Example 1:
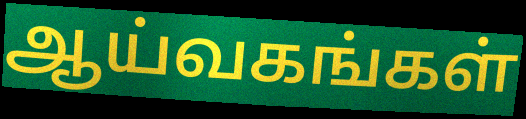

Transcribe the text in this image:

ஆய்வகங்கள்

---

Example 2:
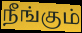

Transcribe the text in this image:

நீங்கும்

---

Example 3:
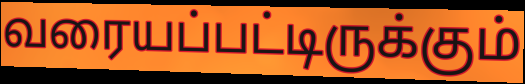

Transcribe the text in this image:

வரையப்பட்டிருக்கும்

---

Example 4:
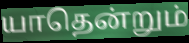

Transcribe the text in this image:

யாதென்றும்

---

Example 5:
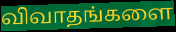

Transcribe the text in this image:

விவாதங்களை